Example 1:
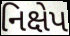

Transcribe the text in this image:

નિક્ષેપ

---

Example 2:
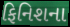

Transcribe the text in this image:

ફિનિશના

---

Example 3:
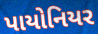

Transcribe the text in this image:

પાયોનિયર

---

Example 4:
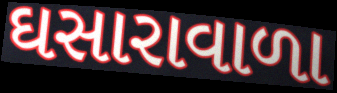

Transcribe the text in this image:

ઘસારાવાળા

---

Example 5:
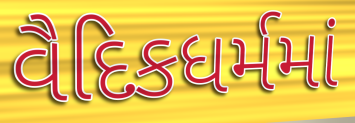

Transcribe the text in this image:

વૈદિકધર્મમાં